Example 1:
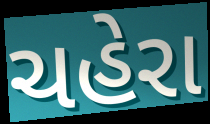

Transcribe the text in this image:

ચહેરા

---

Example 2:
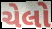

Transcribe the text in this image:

ચેલો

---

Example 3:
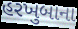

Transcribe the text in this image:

હરખુબાના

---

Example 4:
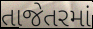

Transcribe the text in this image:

તાજેતરમાં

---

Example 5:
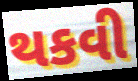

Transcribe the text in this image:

થકવી